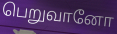
பெறுவானோ